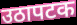
उठापटक